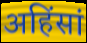
अहिंसां